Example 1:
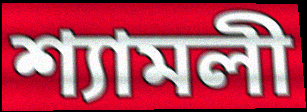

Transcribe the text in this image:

শ্যামলী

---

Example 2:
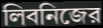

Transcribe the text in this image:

লিবনিজের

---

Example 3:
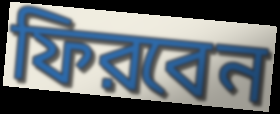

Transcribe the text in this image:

ফিরবেন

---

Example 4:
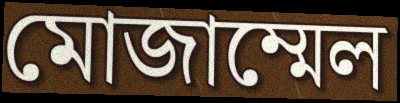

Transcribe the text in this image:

মোজাম্মেল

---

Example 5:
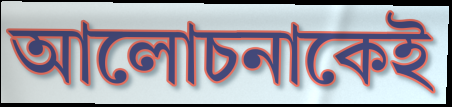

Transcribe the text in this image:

আলোচনাকেই